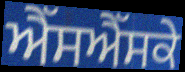
ਐੱਸਐੱਸਕੇ